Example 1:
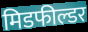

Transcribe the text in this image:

मिडफील्डर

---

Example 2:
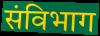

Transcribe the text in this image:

संविभाग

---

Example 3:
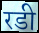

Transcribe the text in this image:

रडी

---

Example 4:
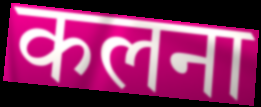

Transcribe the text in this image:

कलना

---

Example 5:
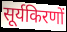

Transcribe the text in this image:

सूर्यकिरणों